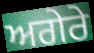
ਅਗੇਰੇ